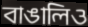
বাঙালিও